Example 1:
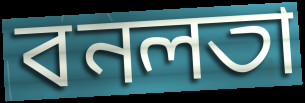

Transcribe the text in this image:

বনলতা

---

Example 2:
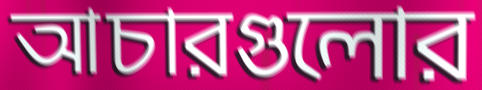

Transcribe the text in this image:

আচারগুলোর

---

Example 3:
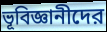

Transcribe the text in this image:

ভূবিজ্ঞানীদের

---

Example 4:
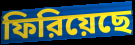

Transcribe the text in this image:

ফিরিয়েছে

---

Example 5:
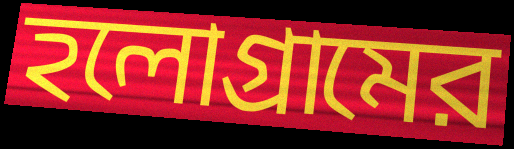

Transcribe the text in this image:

হলোগ্রামের